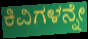
ಕಿವಿಗಳನ್ನೇ